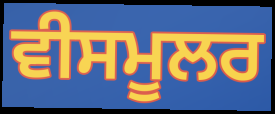
ਵੀਸਮੂਲਰ